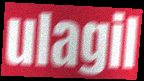
ulagil